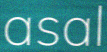
asal